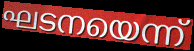
ഘടനയെന്ന്